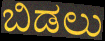
ಬಿಡಲು